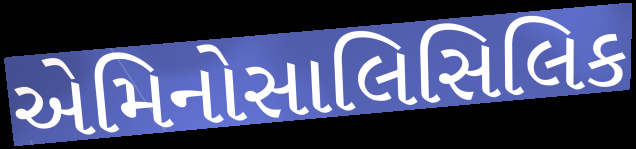
એમિનોસાલિસિલિક